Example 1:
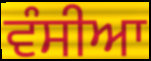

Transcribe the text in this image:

ਵੰਸੀਆ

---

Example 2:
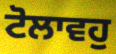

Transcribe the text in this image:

ਟੋਲਾਵਹੁ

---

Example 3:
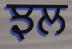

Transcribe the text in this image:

ਝਲ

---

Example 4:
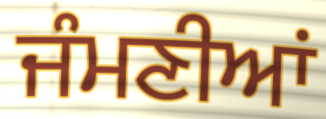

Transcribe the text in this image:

ਜੰਮਣੀਆਂ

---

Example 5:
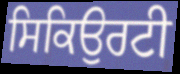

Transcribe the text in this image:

ਸਿਕਿਉਰਟੀ